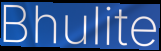
Bhulite